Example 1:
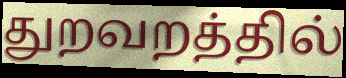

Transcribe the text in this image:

துறவறத்தில்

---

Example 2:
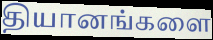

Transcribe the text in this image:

தியானங்களை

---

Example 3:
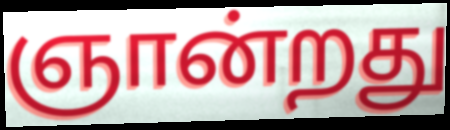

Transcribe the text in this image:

ஞான்றது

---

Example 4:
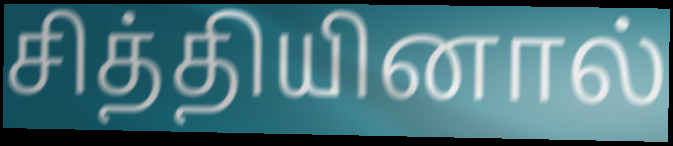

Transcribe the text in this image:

சித்தியினால்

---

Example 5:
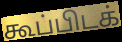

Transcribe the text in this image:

கூப்பிடக்